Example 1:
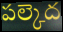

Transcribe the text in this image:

పల్కెద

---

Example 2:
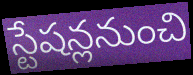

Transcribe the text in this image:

స్టేషన్లనుంచి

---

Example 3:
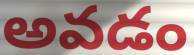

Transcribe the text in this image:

అవడం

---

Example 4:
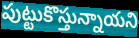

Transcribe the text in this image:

పుట్టుకొస్తున్నాయని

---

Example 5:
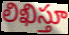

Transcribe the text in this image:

లిఖిస్తూ